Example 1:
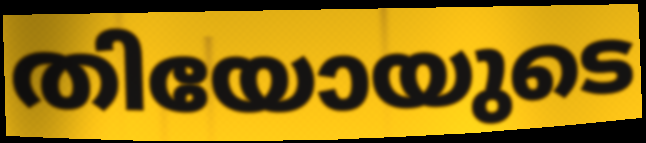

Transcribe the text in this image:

തിയോയുടെ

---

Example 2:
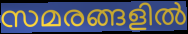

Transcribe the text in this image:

സമരങ്ങളിൽ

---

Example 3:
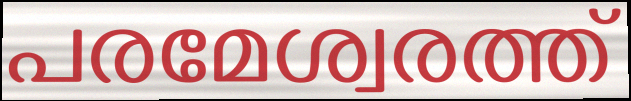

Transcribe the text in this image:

പരമേശ്വരത്ത്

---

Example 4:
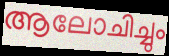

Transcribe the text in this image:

ആലോചിച്ചും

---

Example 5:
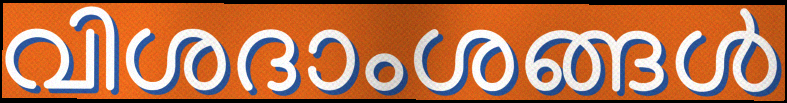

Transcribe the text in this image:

വിശദാംശങ്ങൾ